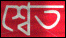
শ্বেত